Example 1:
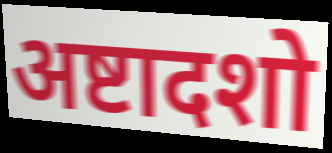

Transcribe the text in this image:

अष्टादशो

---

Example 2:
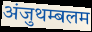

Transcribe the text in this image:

अंजुथम्बलम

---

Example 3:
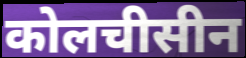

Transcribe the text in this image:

कोलचीसीन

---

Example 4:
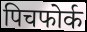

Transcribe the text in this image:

पिचफोर्क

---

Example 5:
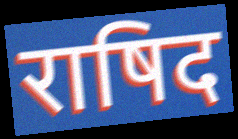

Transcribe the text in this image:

राषिद